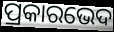
ପ୍ରକାରଭେଦ